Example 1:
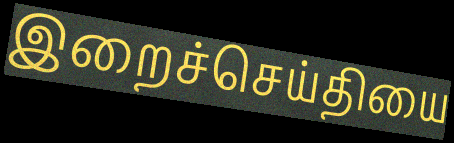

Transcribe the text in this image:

இறைச்செய்தியை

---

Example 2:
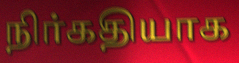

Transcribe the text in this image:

நிர்கதியாக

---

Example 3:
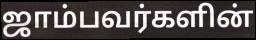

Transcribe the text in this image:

ஜாம்பவர்களின்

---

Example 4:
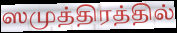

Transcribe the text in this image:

ஸமுத்திரத்தில்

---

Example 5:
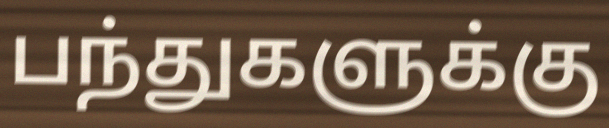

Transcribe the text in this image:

பந்துகளுக்கு